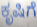
ಕೃಷಿಗೆ